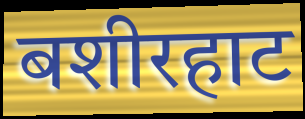
बशीरहाट